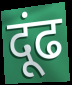
दूंढ